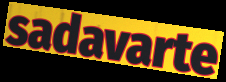
sadavarte